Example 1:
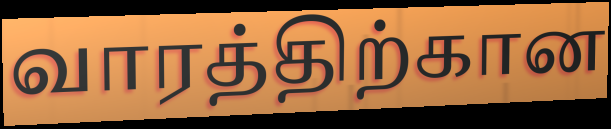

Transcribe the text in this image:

வாரத்திற்கான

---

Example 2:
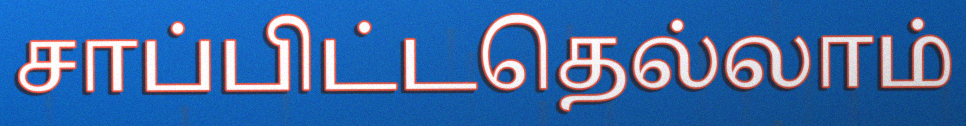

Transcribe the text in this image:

சாப்பிட்டதெல்லாம்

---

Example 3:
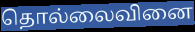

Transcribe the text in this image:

தொல்லைவினை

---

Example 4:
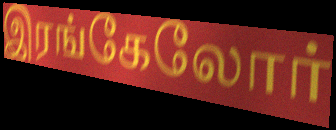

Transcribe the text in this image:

இரங்கேலோர்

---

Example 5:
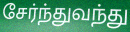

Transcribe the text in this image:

சேர்ந்துவந்து